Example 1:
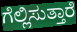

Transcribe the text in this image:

ಗೆಲ್ಲಿಸುತ್ತಾರೆ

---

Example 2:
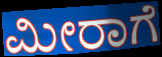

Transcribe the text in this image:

ಮೀರಾಗೆ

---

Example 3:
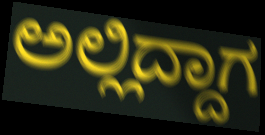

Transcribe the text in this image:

ಅಲ್ಲಿದ್ದಾಗ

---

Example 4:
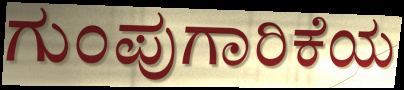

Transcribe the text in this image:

ಗುಂಪುಗಾರಿಕೆಯ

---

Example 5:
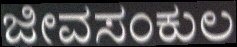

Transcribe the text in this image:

ಜೀವಸಂಕುಲ